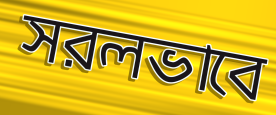
সরলভাবে